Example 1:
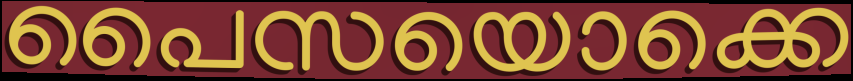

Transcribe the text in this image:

പൈസയൊക്കെ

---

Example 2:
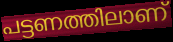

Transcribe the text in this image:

പട്ടണത്തിലാണ്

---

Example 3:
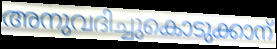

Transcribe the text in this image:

അനുവദിച്ചുകൊടുക്കാന്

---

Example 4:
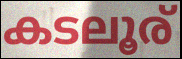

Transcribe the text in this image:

കടലൂര്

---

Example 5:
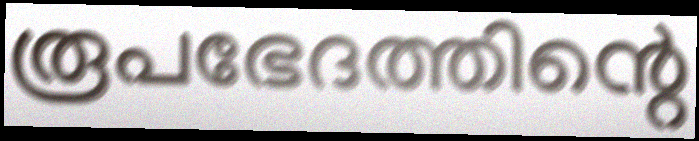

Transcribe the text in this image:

രൂപഭേദത്തിന്റെ